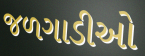
જળગાડીઓ